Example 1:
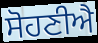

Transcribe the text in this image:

ਸੋਹਣੀਐ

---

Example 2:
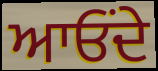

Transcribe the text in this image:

ਆਓਂਦੇ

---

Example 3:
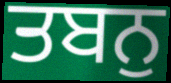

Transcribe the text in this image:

ਤਬਨੁ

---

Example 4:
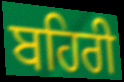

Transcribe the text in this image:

ਬਹਿਰੀ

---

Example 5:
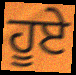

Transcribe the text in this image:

ਹੂਏ